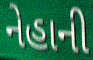
નેહાની